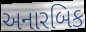
અનારબિક